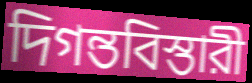
দিগন্তবিস্তারী